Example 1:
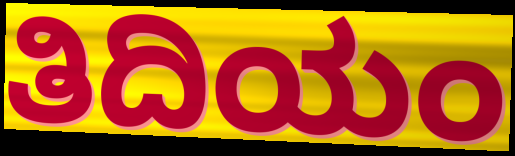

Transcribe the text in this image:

ತಿದಿಯಂ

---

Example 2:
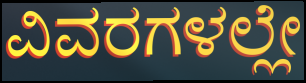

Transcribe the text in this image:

ವಿವರಗಳಲ್ಲೇ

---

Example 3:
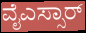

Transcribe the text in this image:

ವೈಎಸ್ಸಾರ್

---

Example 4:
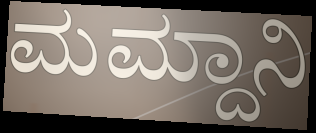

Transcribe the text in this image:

ಮಮ್ದಾನಿ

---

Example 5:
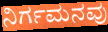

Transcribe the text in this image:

ನಿರ್ಗಮನವು